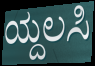
ಯ್ದಲಸಿ